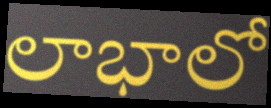
లాభాలో